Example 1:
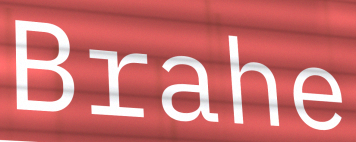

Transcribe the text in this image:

Brahe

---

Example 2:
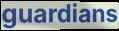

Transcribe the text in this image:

guardians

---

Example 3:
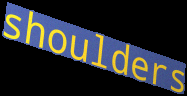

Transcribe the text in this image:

shoulders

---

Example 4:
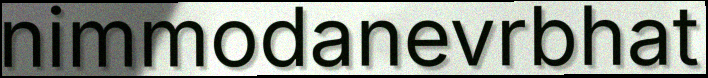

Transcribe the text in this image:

nimmodanevrbhat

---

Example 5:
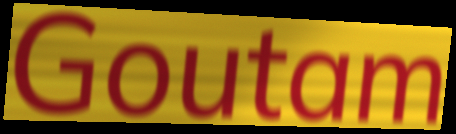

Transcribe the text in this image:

Goutam